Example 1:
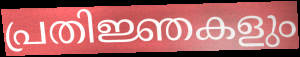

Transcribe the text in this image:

പ്രതിജ്ഞകളും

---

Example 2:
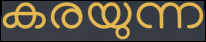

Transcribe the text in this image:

കരയുന്ന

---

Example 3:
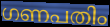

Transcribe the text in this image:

ഗണപതിം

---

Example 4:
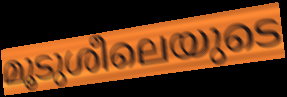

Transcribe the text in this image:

മൂടുശീലെയുടെ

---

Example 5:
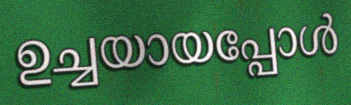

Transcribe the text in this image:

ഉച്ചയായപ്പോൾ